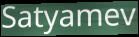
Satyamev